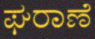
ಘರಾಣೆ